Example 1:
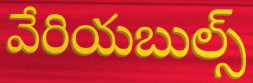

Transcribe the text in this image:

వేరియబుల్స్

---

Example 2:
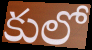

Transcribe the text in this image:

కులో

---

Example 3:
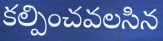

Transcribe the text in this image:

కల్పించవలసిన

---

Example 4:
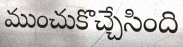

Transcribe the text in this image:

ముంచుకొచ్చేసింది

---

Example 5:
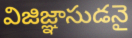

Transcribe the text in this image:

విజిజ్ఞాసుడనై